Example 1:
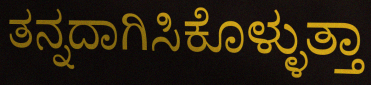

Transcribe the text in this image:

ತನ್ನದಾಗಿಸಿಕೊಳ್ಳುತ್ತಾ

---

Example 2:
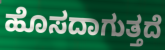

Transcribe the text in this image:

ಹೊಸದಾಗುತ್ತದೆ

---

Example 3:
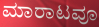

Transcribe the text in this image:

ಮಾರಾಟವೂ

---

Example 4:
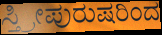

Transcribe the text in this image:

ಸ್ತ್ರೀಪುರುಷರಿಂದ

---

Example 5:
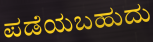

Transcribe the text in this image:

ಪಡೆಯಬಹುದು